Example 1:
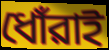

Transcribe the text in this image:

ধোঁৱাই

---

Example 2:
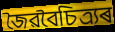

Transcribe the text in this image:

জৈৱবৈচিত্ৰ্যৰ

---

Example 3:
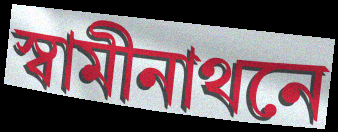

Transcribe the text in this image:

স্বামীনাথনে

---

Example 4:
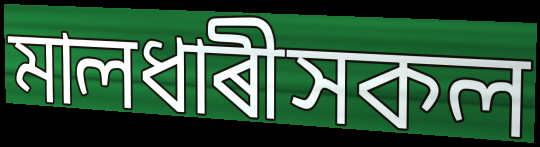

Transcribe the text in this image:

মালধাৰীসকল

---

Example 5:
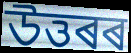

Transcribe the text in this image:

উত্তৰৰ